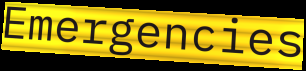
Emergencies